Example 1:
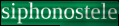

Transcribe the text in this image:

siphonostele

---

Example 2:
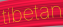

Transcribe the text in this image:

tibetan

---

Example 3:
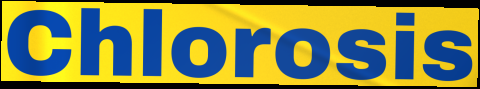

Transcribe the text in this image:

Chlorosis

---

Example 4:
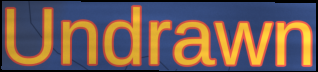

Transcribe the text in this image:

Undrawn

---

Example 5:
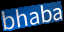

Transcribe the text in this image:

bhaba